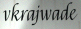
vkrajwade